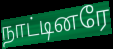
நாட்டினரே